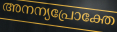
അനന്യപ്രോക്തേ